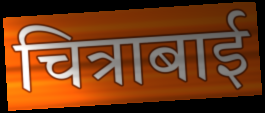
चित्राबाई